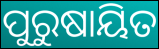
ପୁରୁଷାୟିତ